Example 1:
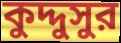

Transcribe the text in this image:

কুদ্দুসুর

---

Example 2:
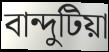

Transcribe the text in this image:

বান্দুটিয়া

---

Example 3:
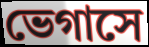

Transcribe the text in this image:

ভেগাসে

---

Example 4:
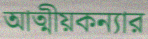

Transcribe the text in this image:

আত্মীয়কন্যার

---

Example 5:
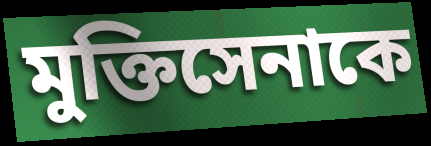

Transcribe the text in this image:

মুক্তিসেনাকে